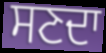
ਸਣਦਾ